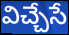
విచ్చేసే